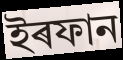
ইৰফান